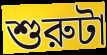
শুরুটা